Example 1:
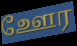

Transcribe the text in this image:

ஊேர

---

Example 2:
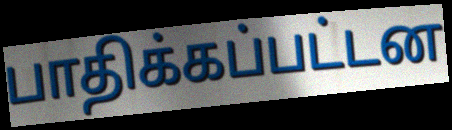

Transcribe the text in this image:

பாதிக்கப்பட்டன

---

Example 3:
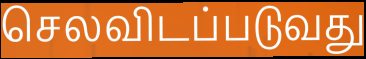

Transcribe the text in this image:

செலவிடப்படுவது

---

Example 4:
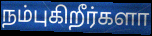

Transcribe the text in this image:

நம்புகிறீர்களா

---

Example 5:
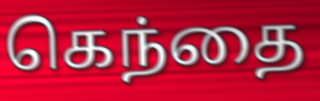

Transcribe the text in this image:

கெந்தை